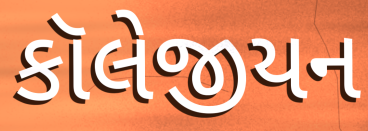
કૉલેજીયન